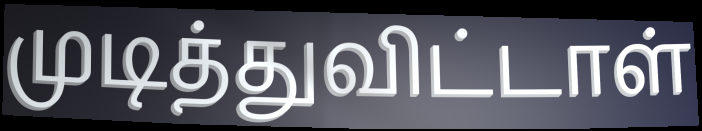
முடித்துவிட்டாள்